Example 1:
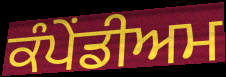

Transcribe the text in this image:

ਕੰਪੇਂਡੀਅਮ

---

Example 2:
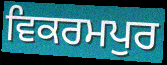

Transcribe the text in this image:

ਵਿਕਰਮਪੁਰ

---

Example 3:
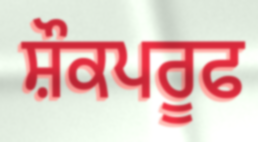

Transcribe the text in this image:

ਸ਼ੌਕਪਰੂਫ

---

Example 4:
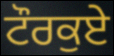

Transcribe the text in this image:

ਟੌਰਕੁਏ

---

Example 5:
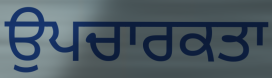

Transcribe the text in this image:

ਉਪਚਾਰਕਤਾ